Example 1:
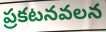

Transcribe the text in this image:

ప్రకటనవలన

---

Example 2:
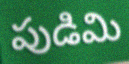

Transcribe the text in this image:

పుడిమి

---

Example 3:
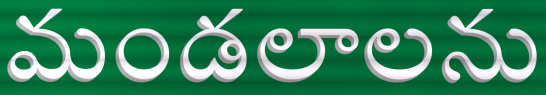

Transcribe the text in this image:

మండలాలను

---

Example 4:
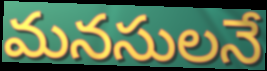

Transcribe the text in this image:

మనసులనే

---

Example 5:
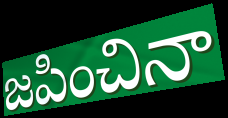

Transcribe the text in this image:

జపించినా